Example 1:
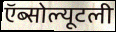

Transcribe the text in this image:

ऍब्सोल्यूटली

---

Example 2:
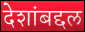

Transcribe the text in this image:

देशांबद्दल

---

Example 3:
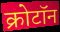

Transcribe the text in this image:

क्रोटॉन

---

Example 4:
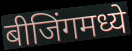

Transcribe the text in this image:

बीजिंगमध्ये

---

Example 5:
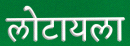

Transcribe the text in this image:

लोटायला